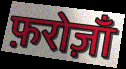
फ़रोज़ाँ